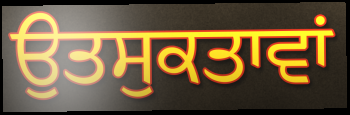
ਉਤਸੁਕਤਾਵਾਂ